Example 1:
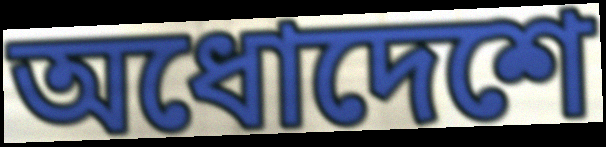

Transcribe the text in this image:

অধোদেশে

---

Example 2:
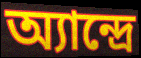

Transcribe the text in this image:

অ্যান্দ্রে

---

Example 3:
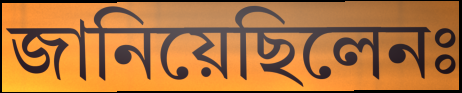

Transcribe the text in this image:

জানিয়েছিলেনঃ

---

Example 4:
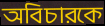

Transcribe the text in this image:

অবিচারকে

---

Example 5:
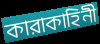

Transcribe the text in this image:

কারাকাহিনী